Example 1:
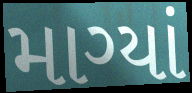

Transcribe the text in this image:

માગ્યાં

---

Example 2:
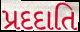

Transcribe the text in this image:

પ્રદદાતિ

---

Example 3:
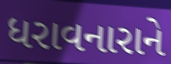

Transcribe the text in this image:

ધરાવનારાને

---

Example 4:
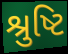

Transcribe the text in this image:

શ્રુષ્ટિ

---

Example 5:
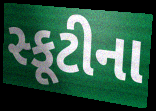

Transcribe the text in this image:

સ્કૂટીના